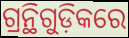
ଗ୍ରନ୍ଥିଗୁଡ଼ିକରେ